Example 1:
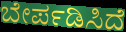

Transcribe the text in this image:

ಬೇರ್ಪಡಿಸಿದೆ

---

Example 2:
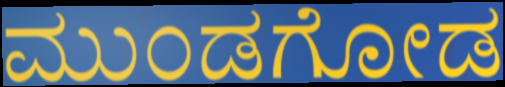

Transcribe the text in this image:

ಮುಂಡಗೋಡ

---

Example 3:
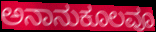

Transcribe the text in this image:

ಅನಾನುಕೂಲವೂ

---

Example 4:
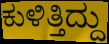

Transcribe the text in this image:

ಕುಳಿತ್ತಿದ್ದು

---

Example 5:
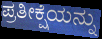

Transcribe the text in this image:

ಪ್ರತೀಕ್ಷೆಯನ್ನು